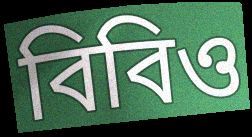
বিবিও